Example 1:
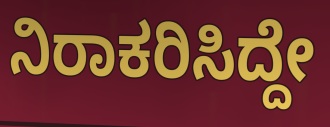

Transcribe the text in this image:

ನಿರಾಕರಿಸಿದ್ದೇ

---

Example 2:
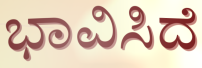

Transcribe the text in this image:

ಭಾವಿಸಿದೆ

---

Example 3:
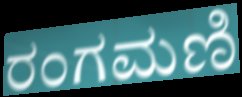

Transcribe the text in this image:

ರಂಗಮಣಿ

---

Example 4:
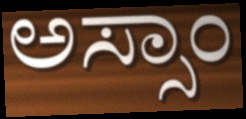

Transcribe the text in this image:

ಅಸ್ಸಾಂ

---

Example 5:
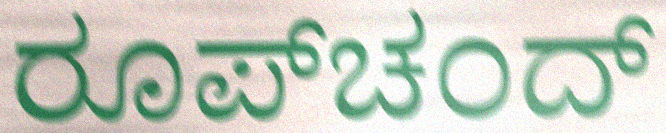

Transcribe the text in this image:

ರೂಪ್‌ಚಂದ್